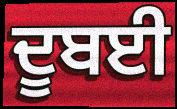
ਦੂਬਈ